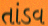
તાંડવ